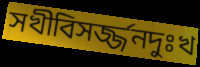
সখীবিসর্জ্জনদুঃখ